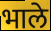
भाले